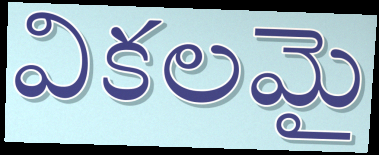
వికలమై